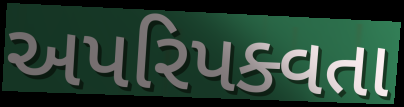
અપરિપક્વતા